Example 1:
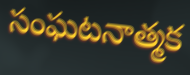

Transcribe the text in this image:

సంఘటనాత్మక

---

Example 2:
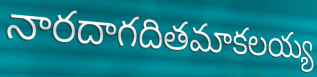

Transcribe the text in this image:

నారదాగదితమాకలయ్య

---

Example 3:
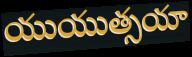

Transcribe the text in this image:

యుయుత్సయా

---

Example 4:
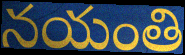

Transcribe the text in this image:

నయంతి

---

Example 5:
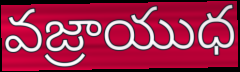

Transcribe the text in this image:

వజ్రాయుధ